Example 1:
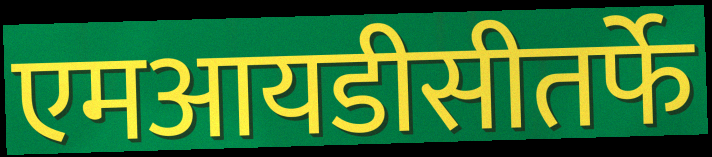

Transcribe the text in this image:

एमआयडीसीतर्फे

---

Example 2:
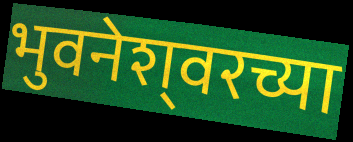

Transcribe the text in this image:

भुवनेश्वरच्या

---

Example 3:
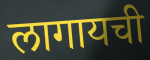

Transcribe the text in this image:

लागायची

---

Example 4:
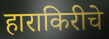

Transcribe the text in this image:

हाराकिरीचे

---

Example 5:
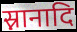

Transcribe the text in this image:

स्नानादि